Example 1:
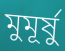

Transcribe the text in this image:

মুমূৰ্ষু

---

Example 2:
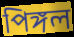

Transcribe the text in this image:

পিঙ্গল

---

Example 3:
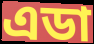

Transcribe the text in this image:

এডা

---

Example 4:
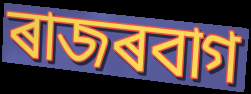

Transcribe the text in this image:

ৰাজৰবাগ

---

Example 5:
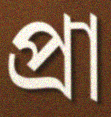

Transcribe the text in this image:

প্ৰা